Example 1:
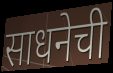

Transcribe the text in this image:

साधनेची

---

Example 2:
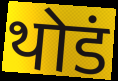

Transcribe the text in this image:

थोडं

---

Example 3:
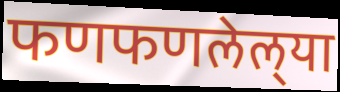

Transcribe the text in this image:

फणफणलेल्या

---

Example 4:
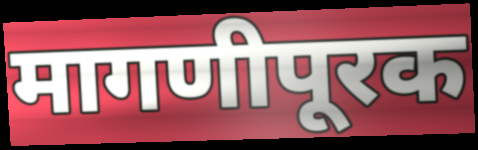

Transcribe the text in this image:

मागणीपूरक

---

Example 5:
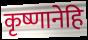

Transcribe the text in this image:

कृष्णानेहि